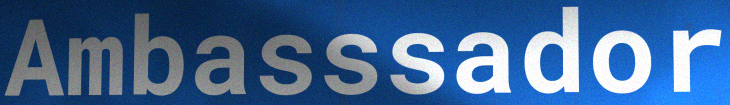
Ambasssador